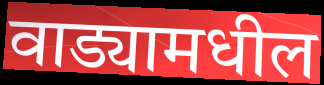
वाड्यामधील